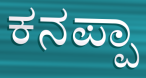
ಕನಪ್ಪಾ